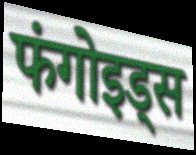
फंगोइड्स